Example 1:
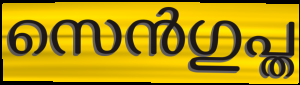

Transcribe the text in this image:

സെൻഗുപ്ത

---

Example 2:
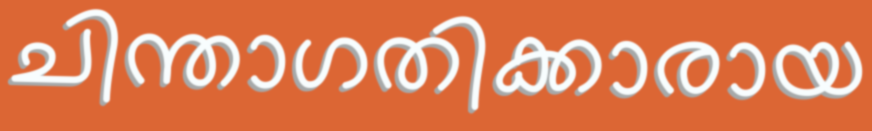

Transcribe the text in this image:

ചിന്താഗതിക്കാരായ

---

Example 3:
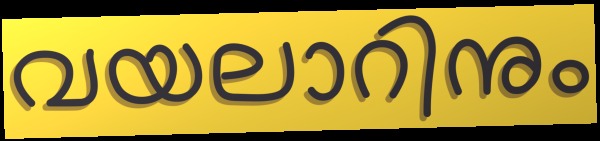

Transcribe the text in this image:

വയലാറിനും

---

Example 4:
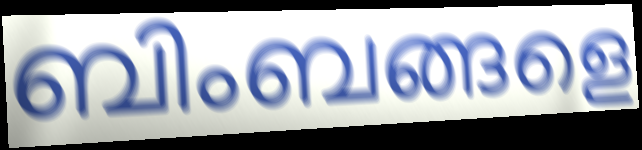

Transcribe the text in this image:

ബിംബങ്ങളെ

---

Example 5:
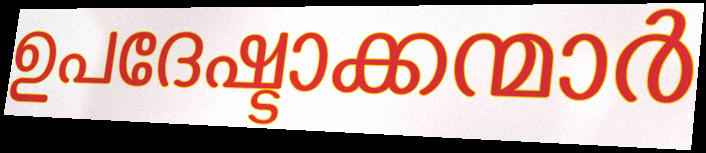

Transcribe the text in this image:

ഉപദേഷ്ടാക്കന്മാർ